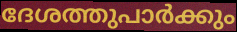
ദേശത്തുപാർക്കും